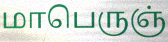
மாபெருஞ்